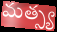
మత్స్య